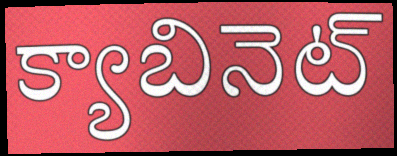
క్యాబినెట్